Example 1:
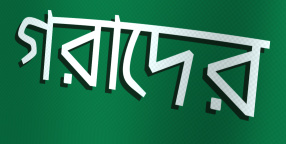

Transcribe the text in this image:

গরাদের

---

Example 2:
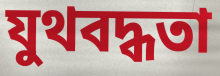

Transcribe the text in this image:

যুথবদ্ধতা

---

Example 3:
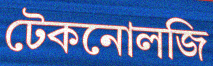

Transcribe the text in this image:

টেকনোলজি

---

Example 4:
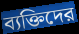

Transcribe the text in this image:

ব্যক্তিদের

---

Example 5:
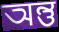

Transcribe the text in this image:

অন্তু